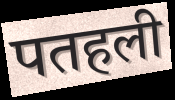
पतहली